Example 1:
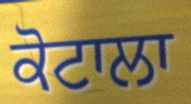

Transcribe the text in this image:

ਕੋਟਾਲਾ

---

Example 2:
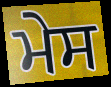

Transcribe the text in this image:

ਮੇਸ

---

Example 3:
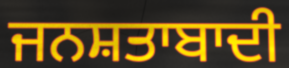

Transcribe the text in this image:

ਜਨਸ਼ਤਾਬਾਦੀ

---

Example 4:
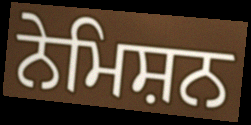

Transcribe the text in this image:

ਨੇਮਿਸ਼ਨ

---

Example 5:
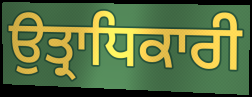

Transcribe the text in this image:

ਉਤ੍ਰਾਧਿਕਾਰੀ